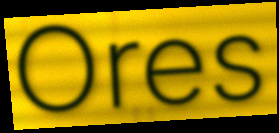
Ores